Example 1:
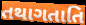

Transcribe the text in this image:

તથાગતાતિ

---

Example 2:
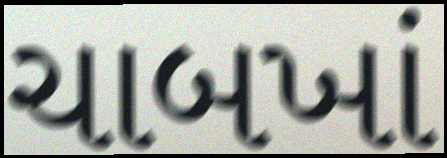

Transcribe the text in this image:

ચાબખાં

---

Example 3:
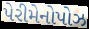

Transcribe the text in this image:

પેરીમેનોપોઝ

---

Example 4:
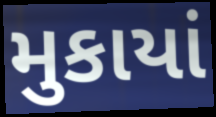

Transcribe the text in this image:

મુકાયાં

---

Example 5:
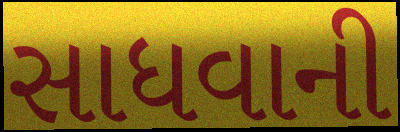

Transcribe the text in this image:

સાધવાની